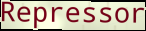
Repressor